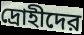
দ্রোহীদের